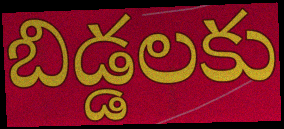
బిడ్డలకు